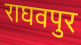
राघवपुर